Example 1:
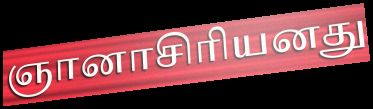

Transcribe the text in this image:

ஞானாசிரியனது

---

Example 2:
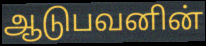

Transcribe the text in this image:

ஆடுபவனின்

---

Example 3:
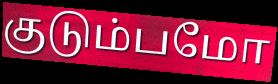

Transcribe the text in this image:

குடும்பமோ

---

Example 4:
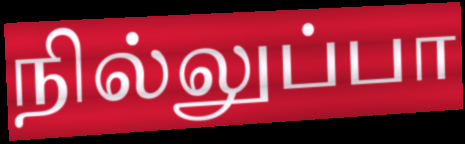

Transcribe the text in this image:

நில்லுப்பா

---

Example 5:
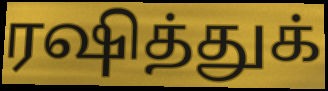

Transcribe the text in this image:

ரஷித்துக்